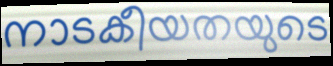
നാടകീയതയുടെ